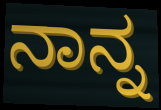
ನಾನ್ನ